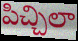
పిచ్చిలా